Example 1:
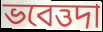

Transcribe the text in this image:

ভবেত্তদা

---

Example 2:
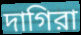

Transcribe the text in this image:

দাগিরা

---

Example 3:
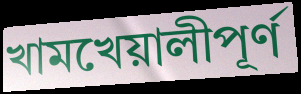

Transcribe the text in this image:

খামখেয়ালীপূর্ণ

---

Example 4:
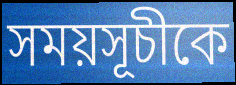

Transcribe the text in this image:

সময়সূচীকে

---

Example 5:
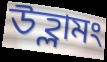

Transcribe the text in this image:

উহ্লামং